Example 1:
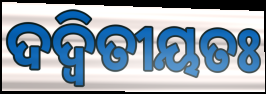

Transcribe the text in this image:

ଦଦ୍ୱିତୀୟତଃ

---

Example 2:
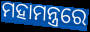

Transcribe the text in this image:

ମହାମନ୍ତ୍ରରେ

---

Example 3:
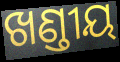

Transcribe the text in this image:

ଖଣ୍ଡୀୟ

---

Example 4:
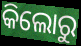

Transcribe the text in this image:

କିଲୋରୁ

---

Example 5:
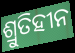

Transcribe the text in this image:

ଶ୍ରୁତିହୀନ